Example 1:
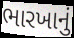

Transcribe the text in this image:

ભારખાનું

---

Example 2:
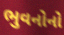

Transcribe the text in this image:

ભુવનોનો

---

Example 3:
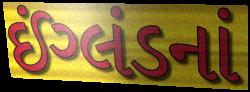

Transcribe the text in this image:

ઈંગ્લંડનાં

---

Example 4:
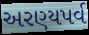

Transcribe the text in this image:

અરણ્યપર્વ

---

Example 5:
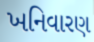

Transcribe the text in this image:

ખનિવારણ